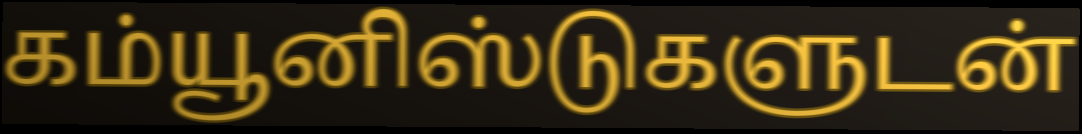
கம்யூனிஸ்டுகளுடன்